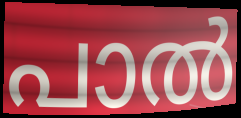
പാൽ